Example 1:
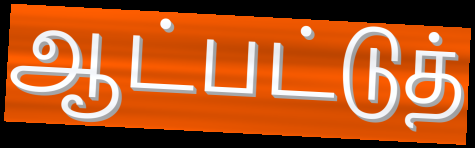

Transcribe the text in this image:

ஆட்பட்டுத்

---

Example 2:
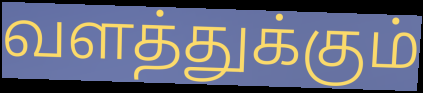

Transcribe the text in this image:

வளத்துக்கும்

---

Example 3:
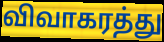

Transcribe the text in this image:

விவாகரத்து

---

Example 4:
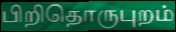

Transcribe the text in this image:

பிறிதொருபுறம்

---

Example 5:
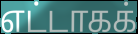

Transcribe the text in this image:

எட்டாகக்